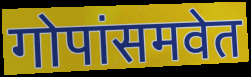
गोपांसमवेत